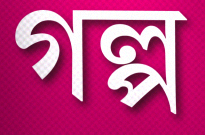
গল্প